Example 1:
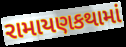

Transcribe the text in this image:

રામાયણકથામાં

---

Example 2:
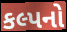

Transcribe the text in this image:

કલ્પનો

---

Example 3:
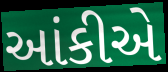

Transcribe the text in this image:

આંકીએ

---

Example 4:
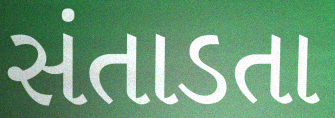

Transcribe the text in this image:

સંતાડતા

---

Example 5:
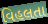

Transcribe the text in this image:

વિહલતા